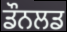
ਡੌਨਲਡ